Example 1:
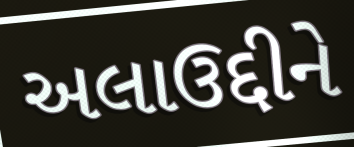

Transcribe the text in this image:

અલાઉદ્દીને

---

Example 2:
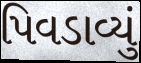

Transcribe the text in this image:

પિવડાવ્યું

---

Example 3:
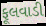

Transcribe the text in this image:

ફૂલવાડી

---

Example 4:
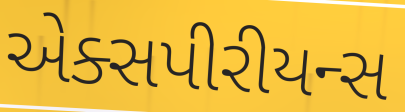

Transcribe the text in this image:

એક્સપીરીયન્સ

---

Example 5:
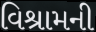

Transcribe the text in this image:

વિશ્રામની